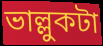
ভাল্লুকটা